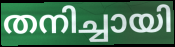
തനിച്ചായി